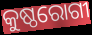
କୁଷ୍ଠରୋଗୀ